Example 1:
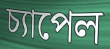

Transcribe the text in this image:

চ্যাপেল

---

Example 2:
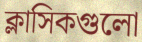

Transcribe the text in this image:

ক্লাসিকগুলো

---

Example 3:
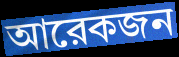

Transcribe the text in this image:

আরেকজন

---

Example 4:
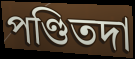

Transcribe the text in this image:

পণ্ডিতদা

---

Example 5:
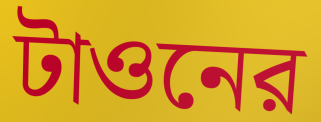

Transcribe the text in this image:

টাওনের